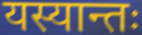
यस्यान्तः